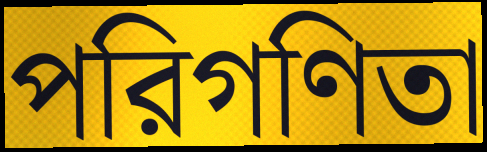
পরিগণিতা